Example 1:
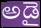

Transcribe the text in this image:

అడై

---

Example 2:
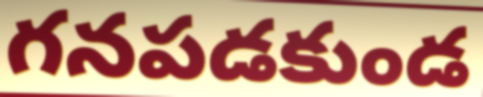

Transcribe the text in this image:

గనపడకుండ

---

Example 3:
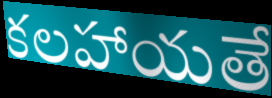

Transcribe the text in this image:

కలహాయతే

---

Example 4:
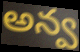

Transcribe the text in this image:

అన్వ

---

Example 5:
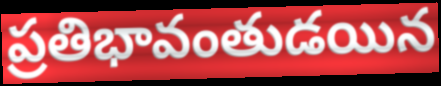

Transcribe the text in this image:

ప్రతిభావంతుడయిన